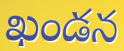
ఖండన